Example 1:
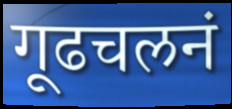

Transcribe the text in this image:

गूढचलनं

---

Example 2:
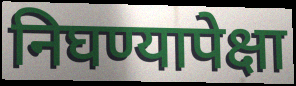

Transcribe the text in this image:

निघण्यापेक्षा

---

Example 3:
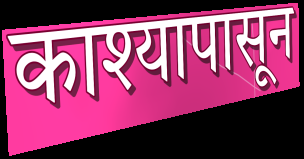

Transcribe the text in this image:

काश्यापासून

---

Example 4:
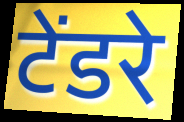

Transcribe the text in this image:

टेंडरे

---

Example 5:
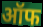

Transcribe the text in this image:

ऑफ